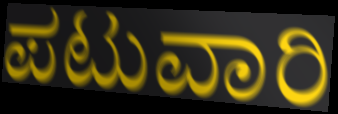
ಪಟುವಾರಿ